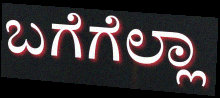
ಬಗೆಗೆಲ್ಲಾ